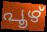
പൂഴ്